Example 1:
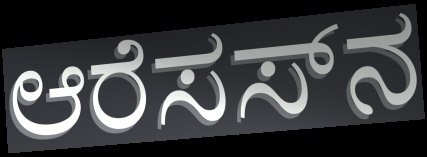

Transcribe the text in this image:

ಆರೆಸಸ್‌ನ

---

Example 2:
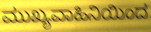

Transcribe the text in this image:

ಮುಖ್ಯವಾಹಿನಿಯಿಂದ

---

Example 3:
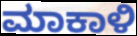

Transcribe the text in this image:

ಮಾಕಾಳಿ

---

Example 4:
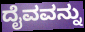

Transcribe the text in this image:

ದೈವವನ್ನು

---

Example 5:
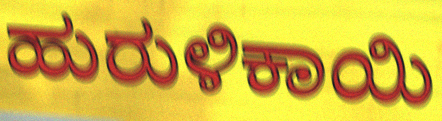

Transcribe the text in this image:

ಹುರುಳಿಕಾಯಿ